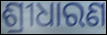
ଶ୍ରୀଧାରଣ